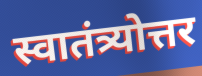
स्वातंत्र्योत्तर